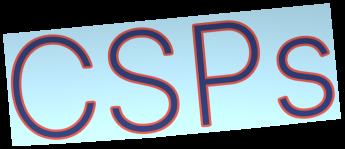
CSPs